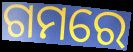
ଗମରେ